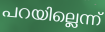
പറയില്ലെന്ന്